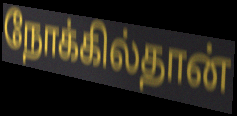
நோக்கில்தான்